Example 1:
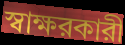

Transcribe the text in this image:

স্বাক্ষরকারী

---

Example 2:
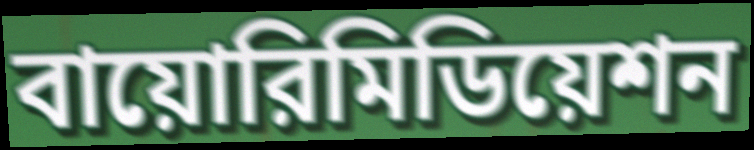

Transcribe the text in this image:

বায়োরিমিডিয়েশন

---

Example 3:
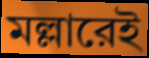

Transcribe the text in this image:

মল্লারেই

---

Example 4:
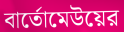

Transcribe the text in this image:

বার্তোমেউয়ের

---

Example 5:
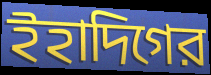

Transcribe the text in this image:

ইহাদিগের